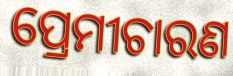
ପ୍ରେମୀଚାରଣ